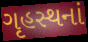
ગૃહસ્થનાં